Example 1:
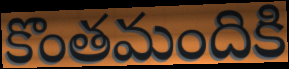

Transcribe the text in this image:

కొంతమందికి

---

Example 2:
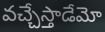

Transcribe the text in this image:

వచ్చేస్తాడేమో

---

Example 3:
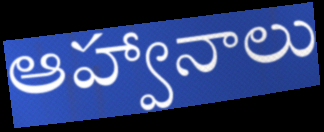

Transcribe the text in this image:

ఆహ్వానాలు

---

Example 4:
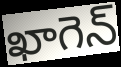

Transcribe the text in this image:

ఖాగెన్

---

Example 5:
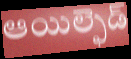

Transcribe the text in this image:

ఆయిల్ఫెడ్